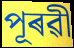
পূৰৱী